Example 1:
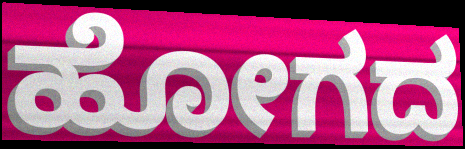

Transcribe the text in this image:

ಹೋಗದ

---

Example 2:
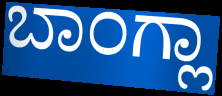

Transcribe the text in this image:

ಬಾಂಗ್ಲಾ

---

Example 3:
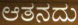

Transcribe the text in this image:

ಆತನದು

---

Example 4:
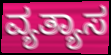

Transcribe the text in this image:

ವ್ಯತ್ಯಾಸ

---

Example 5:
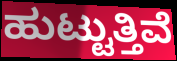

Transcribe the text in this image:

ಹುಟ್ಟುತ್ತಿವೆ